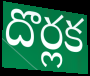
దొర్లక